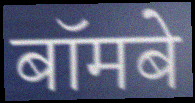
बॉमबे